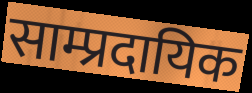
साम्प्रदायिक